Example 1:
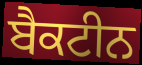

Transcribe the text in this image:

ਬੈਕਟੀਨ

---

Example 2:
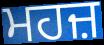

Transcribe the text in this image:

ਮਹਜ਼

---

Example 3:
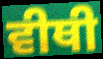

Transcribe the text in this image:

ਵੀਥੀ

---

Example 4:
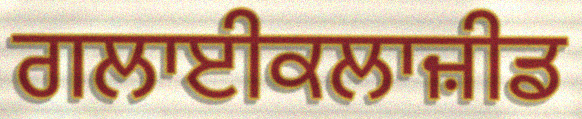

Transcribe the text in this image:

ਗਲਾਈਕਲਾਜ਼ੀਡ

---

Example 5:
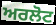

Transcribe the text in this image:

ਅਰਲੋਟ